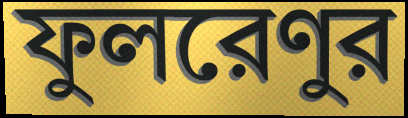
ফুলরেণুর